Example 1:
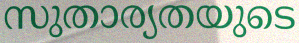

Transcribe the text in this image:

സുതാര്യതയുടെ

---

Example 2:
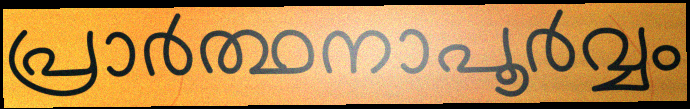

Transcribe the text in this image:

പ്രാർത്ഥനാപൂർവ്വം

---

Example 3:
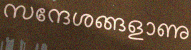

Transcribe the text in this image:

സന്ദേശങ്ങളാണു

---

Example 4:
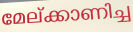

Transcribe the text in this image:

മേല്ക്കാണിച്ച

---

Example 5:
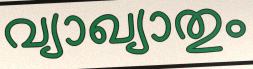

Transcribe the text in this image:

വ്യാഖ്യാതും